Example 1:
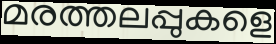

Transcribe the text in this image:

മരത്തലപ്പുകളെ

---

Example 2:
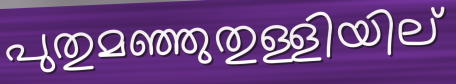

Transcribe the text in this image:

പുതുമഞ്ഞുതുള്ളിയില്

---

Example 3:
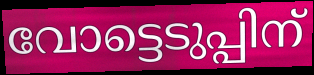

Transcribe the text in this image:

വോട്ടെടുപ്പിന്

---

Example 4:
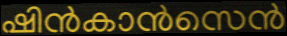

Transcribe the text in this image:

ഷിൻകാൻസെൻ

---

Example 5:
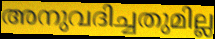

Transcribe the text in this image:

അനുവദിച്ചതുമില്ല